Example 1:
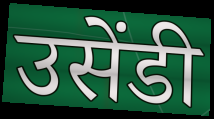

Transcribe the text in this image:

उसेंडी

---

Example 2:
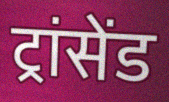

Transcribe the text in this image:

ट्रांसेंड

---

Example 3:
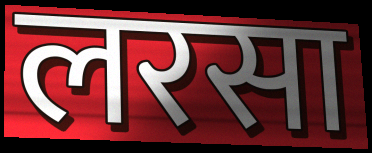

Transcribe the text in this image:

लरसा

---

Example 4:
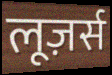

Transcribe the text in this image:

लूज़र्स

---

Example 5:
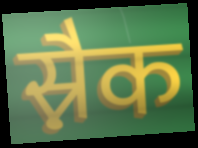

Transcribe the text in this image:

स्नैक